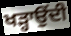
ਖੜ੍ਹਾਉਂਦੀ